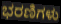
ಭರಣಿಗಳು